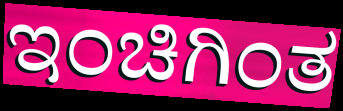
ಇಂಚಿಗಿಂತ